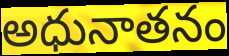
అధునాతనం